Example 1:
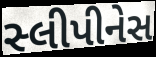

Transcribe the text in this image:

સ્લીપીનેસ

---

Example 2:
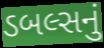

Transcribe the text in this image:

ડબલ્સનું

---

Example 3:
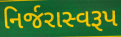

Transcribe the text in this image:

નિર્જરાસ્વરૂપ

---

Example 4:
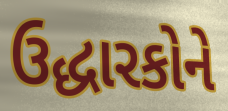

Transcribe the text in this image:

ઉદ્ધારકોને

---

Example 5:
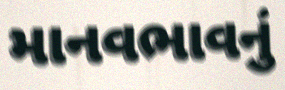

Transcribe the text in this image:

માનવભાવનું